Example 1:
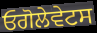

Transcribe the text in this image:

ਓਗੋਲੇਵੇਟਸ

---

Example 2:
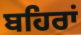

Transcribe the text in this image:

ਬਹਿਰਾਂ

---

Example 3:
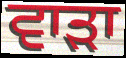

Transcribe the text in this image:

ਵਾੜਾ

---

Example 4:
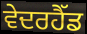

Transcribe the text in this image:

ਵੇਦਰਹੈੱਡ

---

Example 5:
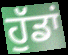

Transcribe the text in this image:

ਹੁੱਡਾਂ